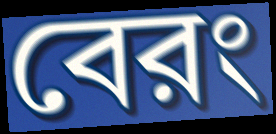
বেরং